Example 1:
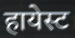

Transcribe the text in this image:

हायेस्ट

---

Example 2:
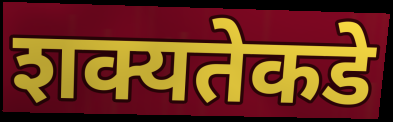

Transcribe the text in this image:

शक्यतेकडे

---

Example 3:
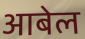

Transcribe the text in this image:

आबेल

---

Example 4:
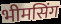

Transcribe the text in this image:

भीमसिंग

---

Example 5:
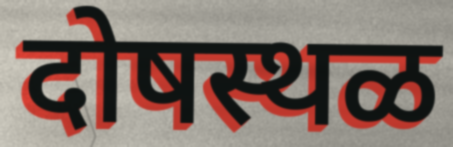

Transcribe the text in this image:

दोषस्थळ